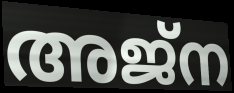
അജ്ന